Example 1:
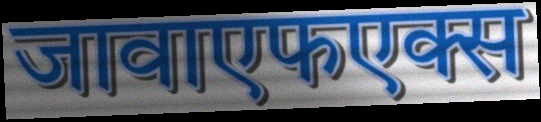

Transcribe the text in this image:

जावाएफएक्स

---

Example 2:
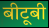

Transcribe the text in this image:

बीटूबी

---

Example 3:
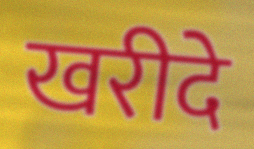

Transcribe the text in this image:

खरीदे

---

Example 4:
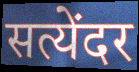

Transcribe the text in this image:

सत्येंदर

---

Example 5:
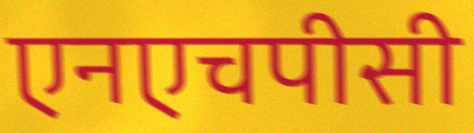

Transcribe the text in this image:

एनएचपीसी